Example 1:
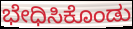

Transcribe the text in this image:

ಭೇಧಿಸಿಕೊಂಡು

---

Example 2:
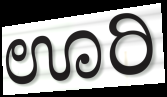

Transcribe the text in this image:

ಊರಿ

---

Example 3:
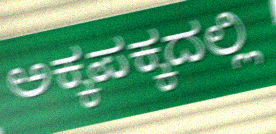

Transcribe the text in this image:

ಅಕ್ಕಪಕ್ಕದಲ್ಲಿ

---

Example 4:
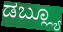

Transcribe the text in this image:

ಡಬ್ಲ್ಯೂ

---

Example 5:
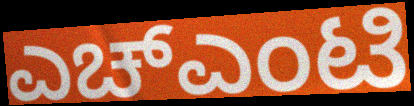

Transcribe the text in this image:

ಎಚ್ಎಂಟಿ